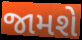
જામશે